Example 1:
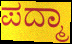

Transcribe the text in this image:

ಪದ್ಮಾ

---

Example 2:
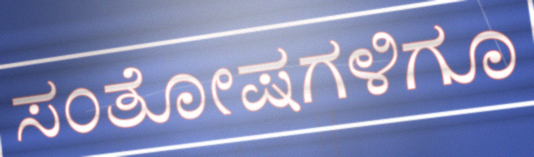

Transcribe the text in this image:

ಸಂತೋಷಗಳಿಗೂ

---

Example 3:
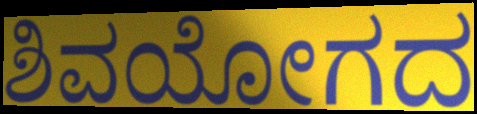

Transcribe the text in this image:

ಶಿವಯೋಗದ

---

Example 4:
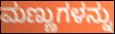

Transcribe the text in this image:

ಮಣ್ಣುಗಳನ್ನು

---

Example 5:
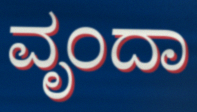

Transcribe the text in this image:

ವೃಂದಾ